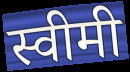
स्वीमी